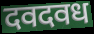
दवदवध